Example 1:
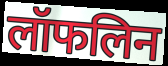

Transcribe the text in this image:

लॉफलिन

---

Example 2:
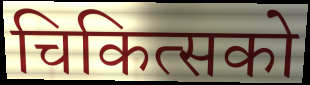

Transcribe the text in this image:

चिकित्सको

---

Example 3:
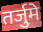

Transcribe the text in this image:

तर्जुमे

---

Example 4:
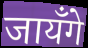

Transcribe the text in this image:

जायँगे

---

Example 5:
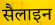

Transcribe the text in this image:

सैलाइन